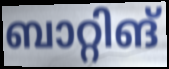
ബാറ്റിങ്